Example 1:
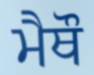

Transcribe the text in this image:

ਮੈਥੌ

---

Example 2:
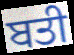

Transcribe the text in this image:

ਬਤੀ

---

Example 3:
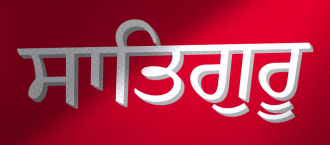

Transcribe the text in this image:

ਸਾਤਿਗੁਰੂ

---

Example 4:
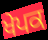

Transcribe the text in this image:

ਖੇਪਕ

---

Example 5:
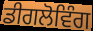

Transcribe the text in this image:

ਡੀਗਲੋਵਿੰਗ